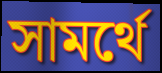
সামর্থে